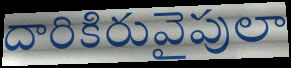
దారికిరువైపులా